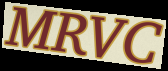
MRVC